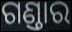
ଗଣ୍ଡାର